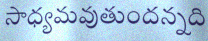
సాధ్యమవుతుందన్నది